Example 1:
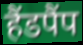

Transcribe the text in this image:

हैंडपैंप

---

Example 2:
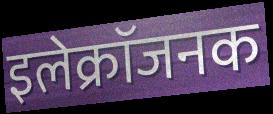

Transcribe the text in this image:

इलेक्रॉजनक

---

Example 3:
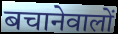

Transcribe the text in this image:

बचानेवालों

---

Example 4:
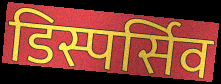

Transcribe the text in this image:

डिस्पर्सिव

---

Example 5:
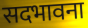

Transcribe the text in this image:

सदभावना